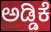
ಅಡ್ಡಿಕೆ